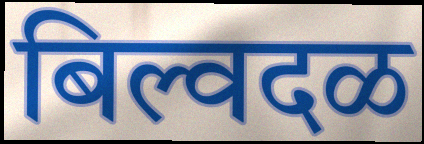
बिल्वदळ